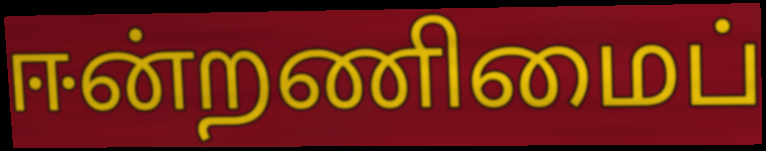
ஈன்றணிமைப்